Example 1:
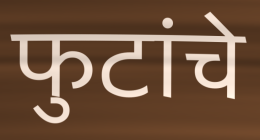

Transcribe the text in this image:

फुटांचे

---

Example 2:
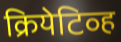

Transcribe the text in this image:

क्रियेटिव्ह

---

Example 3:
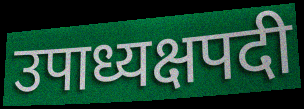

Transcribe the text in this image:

उपाध्यक्षपदी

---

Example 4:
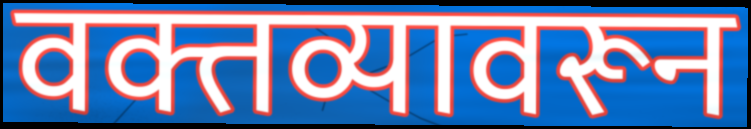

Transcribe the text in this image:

वक्तव्यावरून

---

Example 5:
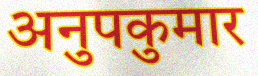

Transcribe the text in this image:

अनुपकुमार